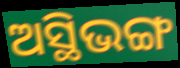
ଅସ୍ଥିଭଙ୍ଗ